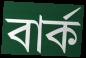
বার্ক